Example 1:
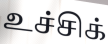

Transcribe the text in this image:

உச்சிக்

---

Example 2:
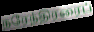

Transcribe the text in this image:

நரேந்திரரைப்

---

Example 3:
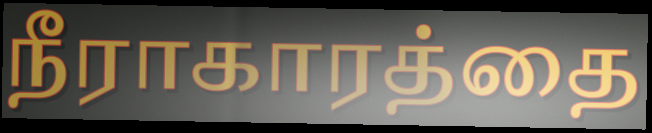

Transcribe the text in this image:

நீராகாரத்தை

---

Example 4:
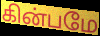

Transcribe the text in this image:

கின்பமே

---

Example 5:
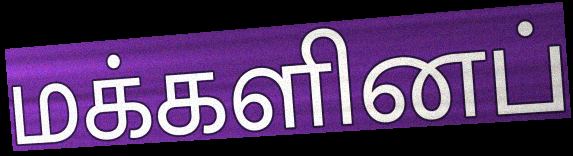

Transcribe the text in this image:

மக்களினப்